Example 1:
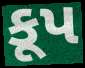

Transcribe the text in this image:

કૂપ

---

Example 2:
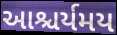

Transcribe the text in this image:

આશ્ચર્યમય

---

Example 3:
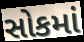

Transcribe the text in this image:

સોકમાં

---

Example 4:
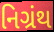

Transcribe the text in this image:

નિગ્રંથ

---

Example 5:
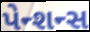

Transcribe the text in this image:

પેન્શન્સ